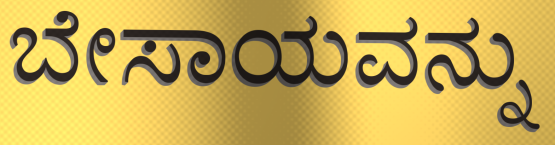
ಬೇಸಾಯವನ್ನು